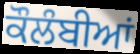
ਕੌਲੰਬੀਆਂ